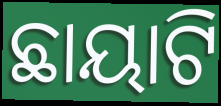
ଛାୟାଟି